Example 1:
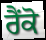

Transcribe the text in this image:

ਰੈਂਕੋ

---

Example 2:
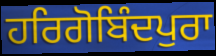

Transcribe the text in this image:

ਹਰਿਗੋਬਿੰਦਪੁਰਾ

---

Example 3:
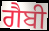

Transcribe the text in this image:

ਗੈਬੀ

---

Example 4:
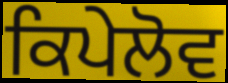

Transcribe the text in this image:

ਕਿਪੇਲੋਵ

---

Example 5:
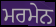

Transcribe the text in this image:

ਮਰਮੇਨ